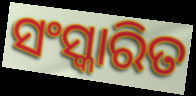
ସଂସ୍କାରିତ